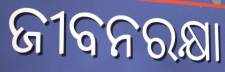
ଜୀବନରକ୍ଷା